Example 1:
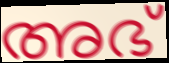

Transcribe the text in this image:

അഭ്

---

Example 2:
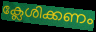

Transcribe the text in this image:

ക്ലേശിക്കണം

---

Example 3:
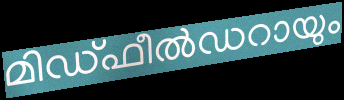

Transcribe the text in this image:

മിഡ്ഫീൽഡറായും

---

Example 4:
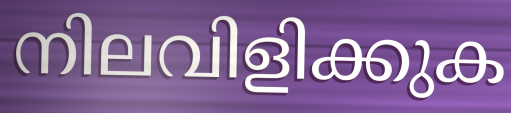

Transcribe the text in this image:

നിലവിളിക്കുക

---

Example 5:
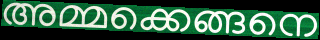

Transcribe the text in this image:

അമ്മക്കെങ്ങനെ